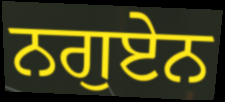
ਨਗੁਏਨ